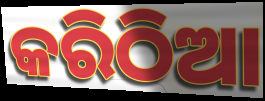
କରିଠିଆ